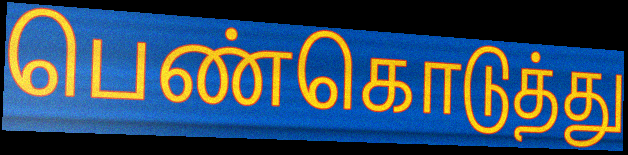
பெண்கொடுத்து